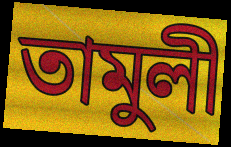
তামুলী